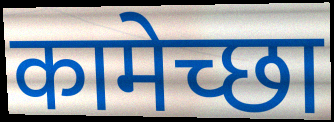
कामेच्छा